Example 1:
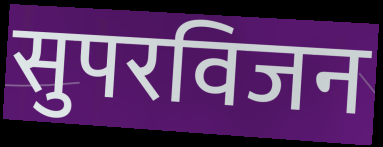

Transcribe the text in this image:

सुपरविजन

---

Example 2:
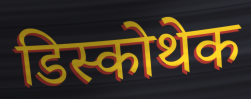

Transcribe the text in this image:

डिस्कोथेक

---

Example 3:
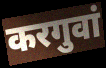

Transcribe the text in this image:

करगुवां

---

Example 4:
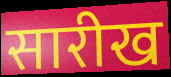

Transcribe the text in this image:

सारीख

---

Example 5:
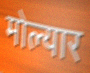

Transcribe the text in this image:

मोल्यार